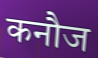
कनौज